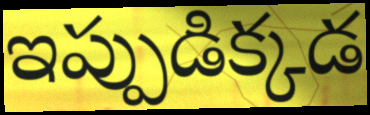
ఇప్పుడిక్కడ